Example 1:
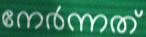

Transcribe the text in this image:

നേർന്നത്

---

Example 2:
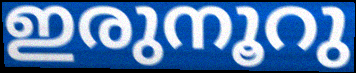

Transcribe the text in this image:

ഇരുനൂറു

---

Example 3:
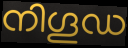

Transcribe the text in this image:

നിഗൂഡ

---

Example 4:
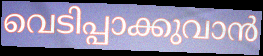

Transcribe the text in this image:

വെടിപ്പാക്കുവാൻ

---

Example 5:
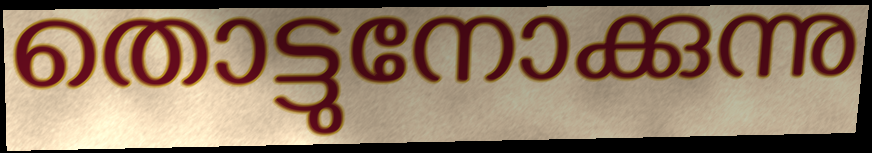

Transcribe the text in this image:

തൊട്ടുനോക്കുന്നു